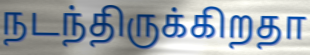
நடந்திருக்கிறதா